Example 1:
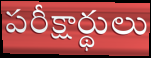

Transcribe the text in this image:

పరీక్షార్థులు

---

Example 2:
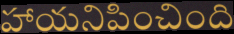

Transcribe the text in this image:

హాయనిపించింది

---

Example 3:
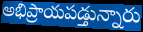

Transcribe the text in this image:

అభిప్రాయపడ్తున్నారు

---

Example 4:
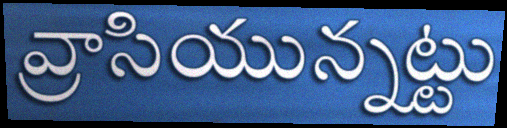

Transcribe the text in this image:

వ్రాసియున్నట్టు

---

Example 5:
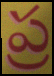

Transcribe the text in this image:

ప్ర